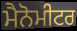
ਮੈਨੋਮੀਟਰ